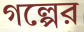
গল্পের